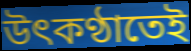
উৎকণ্ঠাতেই